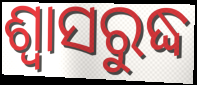
ଶ୍ବାସରୁଦ୍ଧ